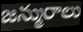
జన్మురాలు